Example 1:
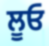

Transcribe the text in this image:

ਲੂਓ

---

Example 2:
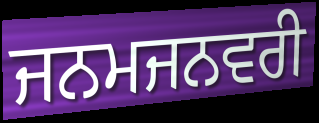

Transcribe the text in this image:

ਜਨਮਜਨਵਰੀ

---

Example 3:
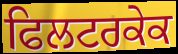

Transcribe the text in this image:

ਫਿਲਟਰਕੇਕ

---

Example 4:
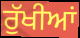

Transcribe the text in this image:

ਰੁੱਖੀਆਂ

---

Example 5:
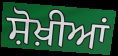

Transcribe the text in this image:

ਸ਼ੋਖ਼ੀਆਂ